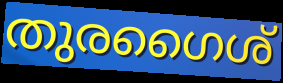
തുരഗൈശ്